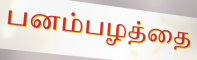
பனம்பழத்தை